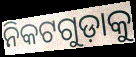
ନିକଟଗୁଡ଼ାକୁ